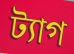
ট্যাগ